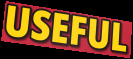
USEFUL